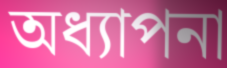
অধ্যাপনা